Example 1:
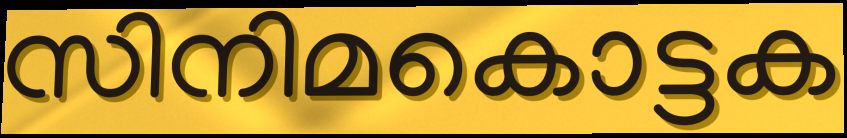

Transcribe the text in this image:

സിനിമകൊട്ടക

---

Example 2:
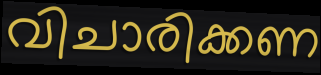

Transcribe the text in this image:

വിചാരിക്കണ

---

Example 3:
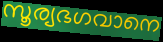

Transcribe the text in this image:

സൂര്യഭഗവാനെ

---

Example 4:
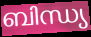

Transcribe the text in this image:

ബിന്ധ്യ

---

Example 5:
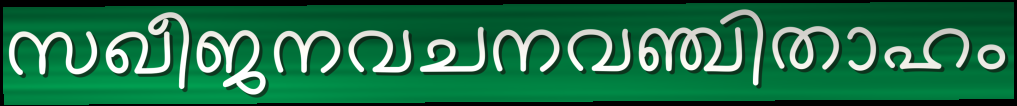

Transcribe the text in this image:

സഖീജനവചനവഞ്ചിതാഹം